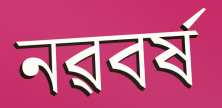
নৱবৰ্ষ